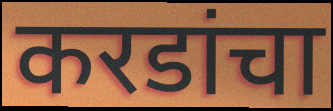
करडांचा